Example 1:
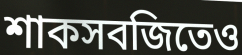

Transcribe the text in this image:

শাকসবজিতেও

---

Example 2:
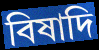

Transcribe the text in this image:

বিষাদি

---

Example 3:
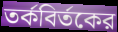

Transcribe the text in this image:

তর্কবির্তকের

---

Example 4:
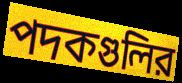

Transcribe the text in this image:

পদকগুলির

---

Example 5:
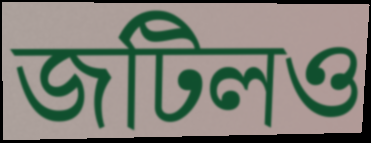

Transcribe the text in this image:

জটিলও